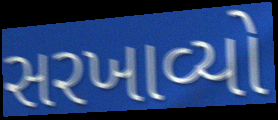
સરખાવ્યો